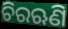
ଚିରଋଣି